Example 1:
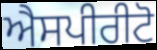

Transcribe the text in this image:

ਐਸਪੀਰੀਟੋ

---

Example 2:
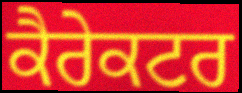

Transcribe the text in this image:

ਕੈਰੇਕਟਰ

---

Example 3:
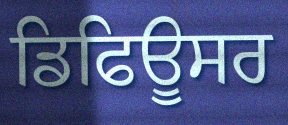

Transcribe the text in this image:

ਡਿਫਿਊਸਰ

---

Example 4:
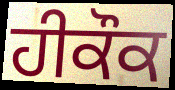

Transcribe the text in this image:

ਹੀਕੌਕ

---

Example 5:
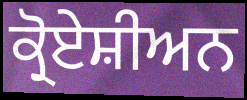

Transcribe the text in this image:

ਕ੍ਰੋਏਸ਼ੀਅਨ